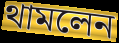
থামলেন